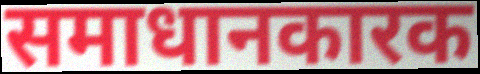
समाधानकारक